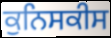
ਕੁਨਿਸਕੀਸ